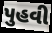
પુહવી